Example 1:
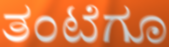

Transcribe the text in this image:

ತಂಟೆಗೂ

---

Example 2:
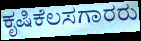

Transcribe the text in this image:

ಕೃಷಿಕೆಲಸಗಾರರು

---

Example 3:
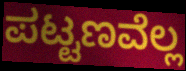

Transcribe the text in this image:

ಪಟ್ಟಣವೆಲ್ಲ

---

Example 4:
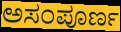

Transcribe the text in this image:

ಅಸಂಪೂರ್ಣ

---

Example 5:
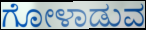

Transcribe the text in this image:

ಗೋಳಾಡುವ